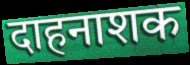
दाहनाशक